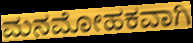
ಮನಮೋಹಕವಾಗಿ